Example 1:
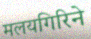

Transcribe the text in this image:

मलयगिरिने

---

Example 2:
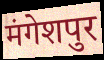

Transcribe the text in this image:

मंगेशपुर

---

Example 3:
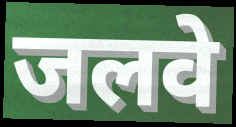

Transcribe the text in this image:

जलवे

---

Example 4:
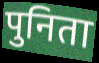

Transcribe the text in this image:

पुनिता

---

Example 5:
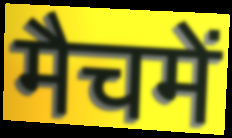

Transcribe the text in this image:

मैचमें